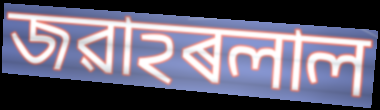
জৱাহৰলাল